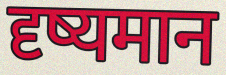
दृष्यमान